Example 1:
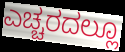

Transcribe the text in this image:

ಎಚ್ಚರದಲ್ಲೂ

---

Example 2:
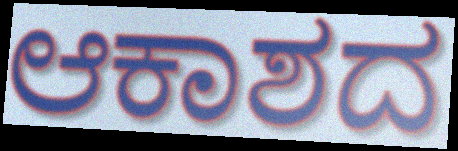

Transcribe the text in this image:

ಆಕಾಶದ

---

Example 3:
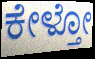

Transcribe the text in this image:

ಕೇಳ್ತೋ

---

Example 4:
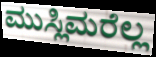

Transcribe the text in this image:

ಮುಸ್ಲಿಮರೆಲ್ಲ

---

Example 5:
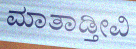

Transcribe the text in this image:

ಮಾತಾಡ್ತೀವಿ